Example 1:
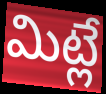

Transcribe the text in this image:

మిట్లే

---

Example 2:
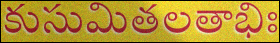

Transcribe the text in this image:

కుసుమితలతాభిః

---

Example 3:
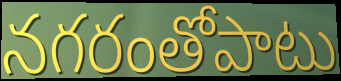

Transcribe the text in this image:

నగరంతోపాటు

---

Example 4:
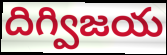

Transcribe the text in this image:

దిగ్విజయ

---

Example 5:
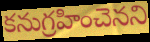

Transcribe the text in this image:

కనుగ్రహించెనని